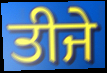
ਤੀਜੇ